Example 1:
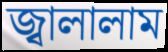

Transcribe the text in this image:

জ্বালালাম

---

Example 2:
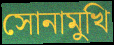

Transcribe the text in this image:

সোনামুখি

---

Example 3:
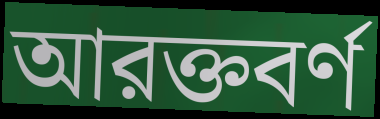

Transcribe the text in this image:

আরক্তবর্ণ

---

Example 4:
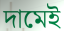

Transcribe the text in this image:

দামেই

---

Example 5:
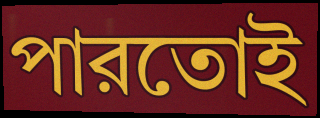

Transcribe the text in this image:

পারতোই